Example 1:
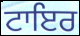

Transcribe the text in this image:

ਟਾਇਰ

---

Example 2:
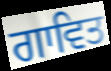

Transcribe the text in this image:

ਗਾਵਿਤ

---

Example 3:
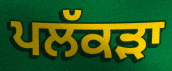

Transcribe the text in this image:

ਪਲੱਕੜਾ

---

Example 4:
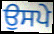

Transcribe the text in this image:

ਉਸਪੇ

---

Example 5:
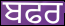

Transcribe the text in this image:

ਬਫਰ